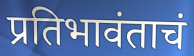
प्रतिभावंताचं